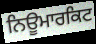
ਨਿਊਮਾਰਕਿਟ